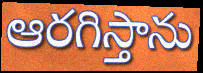
ఆరగిస్తాను